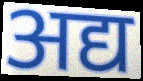
अद्य